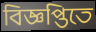
বিজ্ঞপ্তিতে